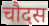
चौदस